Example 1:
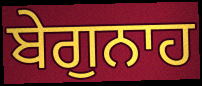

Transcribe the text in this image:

ਬੇਗੁਨਾਹ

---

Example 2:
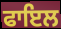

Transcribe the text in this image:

ਫਾਇਲ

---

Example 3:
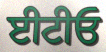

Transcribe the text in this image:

ਈਟੀਓ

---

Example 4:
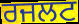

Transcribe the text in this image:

ਰਜਲਟ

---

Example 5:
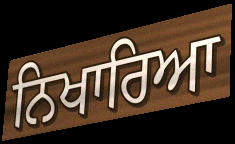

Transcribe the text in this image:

ਨਿਖਾਰਿਆ